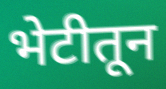
भेटीतून